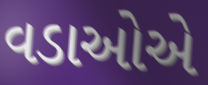
વડાઓએ